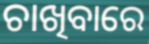
ଚାଖିବାରେ